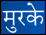
मुरके